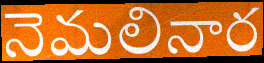
నెమలినార